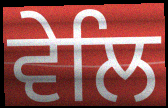
ਵੇਲਿ